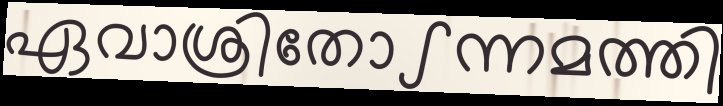
ഏവാശ്രിതോഽന്നമത്തി